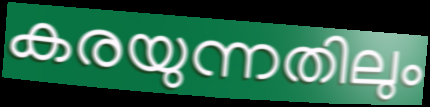
കരയുന്നതിലും